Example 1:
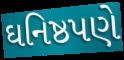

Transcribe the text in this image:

ઘનિષ્ઠપણે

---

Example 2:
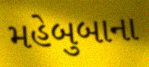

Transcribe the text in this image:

મહેબુબાના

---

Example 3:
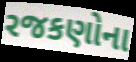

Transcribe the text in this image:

રજકણોના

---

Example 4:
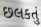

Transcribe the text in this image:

છલકતું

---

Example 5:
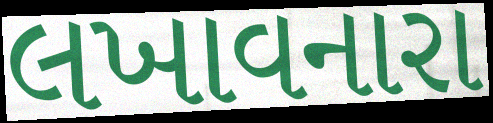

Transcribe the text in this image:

લખાવનારા